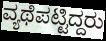
ವ್ಯಥೆಪಟ್ಟಿದ್ದರು